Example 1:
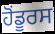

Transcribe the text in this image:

ਹੋਂਡੂਰਸ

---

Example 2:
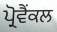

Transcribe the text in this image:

ਪ੍ਰੋਵੈਂਕਲ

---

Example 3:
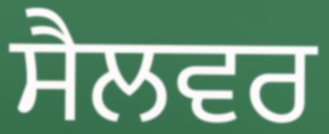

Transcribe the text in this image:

ਸੈਲਵਰ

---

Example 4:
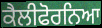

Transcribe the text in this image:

ਕੈਲੀਫੋਰਨਿਆ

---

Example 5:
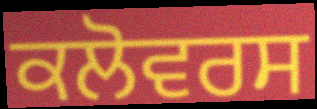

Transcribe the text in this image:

ਕਲੋਵਰਸ